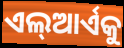
ଏଲ୍ଆର୍ଏକୁ